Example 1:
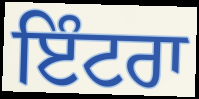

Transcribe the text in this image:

ਇੰਟਰਾ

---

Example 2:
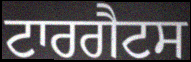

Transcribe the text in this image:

ਟਾਰਗੈਟਸ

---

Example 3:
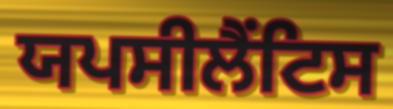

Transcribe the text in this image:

ਯਪਸੀਲੈਂਟਿਸ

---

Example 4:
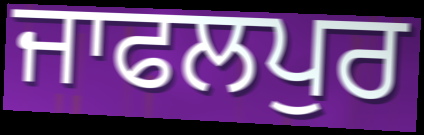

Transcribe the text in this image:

ਜਾਫਲਪੁਰ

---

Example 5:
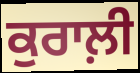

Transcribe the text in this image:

ਕੁਰਾਲ਼ੀ